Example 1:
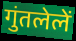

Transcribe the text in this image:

गुंतलेलें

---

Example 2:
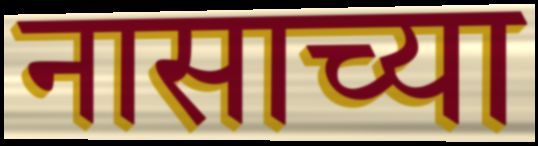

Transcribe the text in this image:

नासाच्या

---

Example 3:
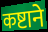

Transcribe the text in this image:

कष्टाने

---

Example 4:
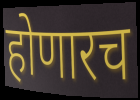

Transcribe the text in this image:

होणारच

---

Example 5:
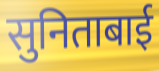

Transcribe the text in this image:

सुनिताबाई